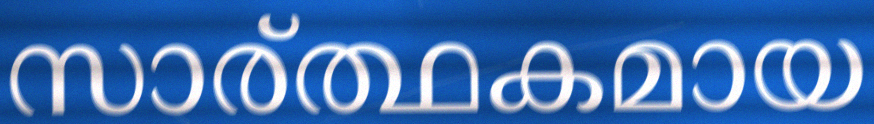
സാര്ത്ഥകമായ